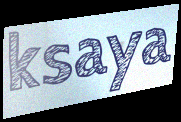
ksaya